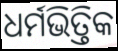
ଧର୍ମଭିତ୍ତିକ